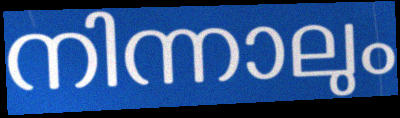
നിന്നാലും